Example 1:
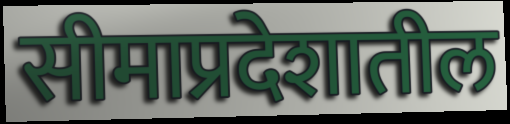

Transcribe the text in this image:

सीमाप्रदेशातील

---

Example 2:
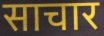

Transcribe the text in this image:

साचार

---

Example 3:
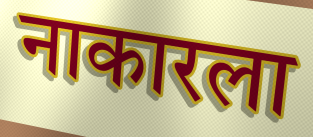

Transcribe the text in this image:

नाकारला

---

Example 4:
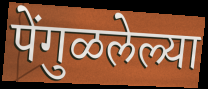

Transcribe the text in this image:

पेंगुळलेल्या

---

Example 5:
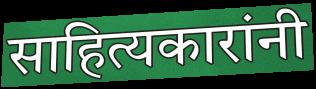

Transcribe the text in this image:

साहित्यकारांनी